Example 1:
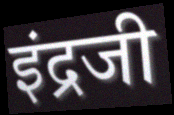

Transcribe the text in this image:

इंद्रजी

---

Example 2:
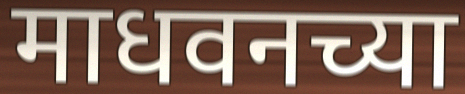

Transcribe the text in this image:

माधवनच्या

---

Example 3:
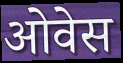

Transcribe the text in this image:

ओवेस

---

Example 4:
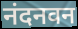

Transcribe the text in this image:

नंदनवन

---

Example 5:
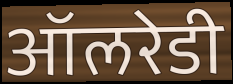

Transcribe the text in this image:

ऑलरेडी